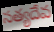
సత్యదేవ